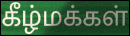
கீழ்மக்கள்